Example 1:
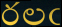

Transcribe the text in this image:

రలఁ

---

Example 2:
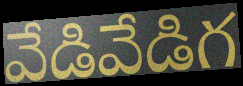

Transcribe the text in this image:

వేడివేడిగ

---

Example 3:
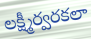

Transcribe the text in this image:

లక్ష్మీర్వరకలా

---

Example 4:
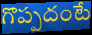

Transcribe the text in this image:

గొప్పదంటే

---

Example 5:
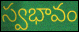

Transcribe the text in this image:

స్వభావం